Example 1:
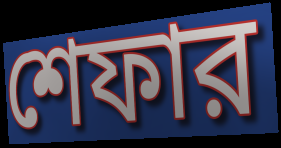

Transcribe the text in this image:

শেফার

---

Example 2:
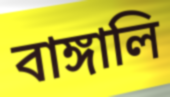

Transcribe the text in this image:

বাঙ্গালি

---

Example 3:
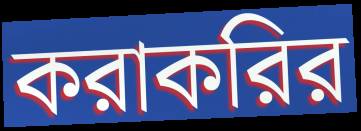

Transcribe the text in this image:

করাকরির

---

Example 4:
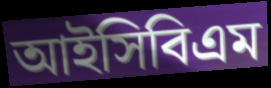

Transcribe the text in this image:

আইসিবিএম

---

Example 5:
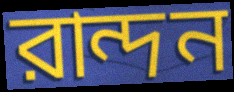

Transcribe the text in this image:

রান্দন